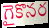
గైకొనర